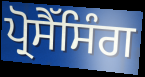
ਪ੍ਰੋਸੈੱਸਿੰਗ